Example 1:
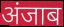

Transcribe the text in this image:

अंजाब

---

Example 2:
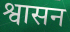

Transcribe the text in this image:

श्वासन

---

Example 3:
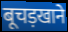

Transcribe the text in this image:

बूचड़खाने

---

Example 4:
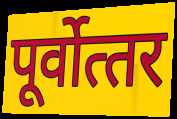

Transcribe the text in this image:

पूर्वोत्‍तर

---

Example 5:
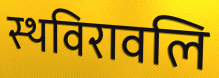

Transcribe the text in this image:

स्थविरावलि